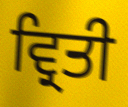
ਵ੍ਰਿਤੀ